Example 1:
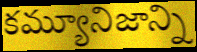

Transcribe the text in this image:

కమ్యూనిజాన్ని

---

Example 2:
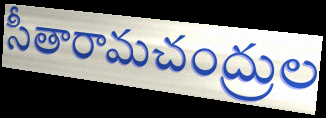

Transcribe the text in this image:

సీతారామచంద్రుల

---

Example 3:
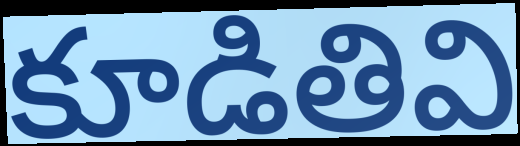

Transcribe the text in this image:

కూడితివి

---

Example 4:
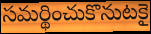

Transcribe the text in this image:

సమర్థించుకొనుటకై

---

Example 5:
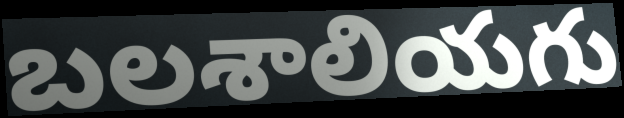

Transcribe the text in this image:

బలశాలియగు